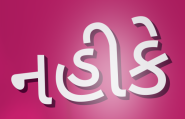
નહીકે